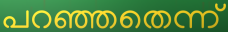
പറഞ്ഞതെന്ന്